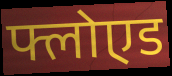
फ्लोएड